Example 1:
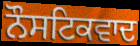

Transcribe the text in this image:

ਨੌਸਟਿਕਵਾਦ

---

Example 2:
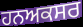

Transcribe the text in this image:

ਹਨਅਕਸਰ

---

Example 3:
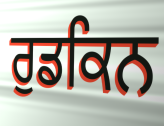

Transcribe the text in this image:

ਰੁਡਕਿਨ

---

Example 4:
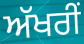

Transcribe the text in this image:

ਅੱਖਰੀਂ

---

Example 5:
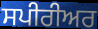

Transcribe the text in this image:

ਸਪੀਰੀਅਰ